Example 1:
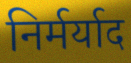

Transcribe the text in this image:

निर्मर्याद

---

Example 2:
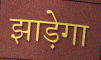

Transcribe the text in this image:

झाड़ेगा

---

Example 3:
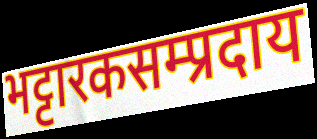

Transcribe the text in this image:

भट्टारकसम्प्रदाय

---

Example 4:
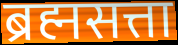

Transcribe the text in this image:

ब्रह्मसत्ता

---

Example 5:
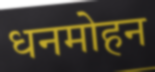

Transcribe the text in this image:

धनमोहन